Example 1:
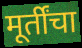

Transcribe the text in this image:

मूर्तींचा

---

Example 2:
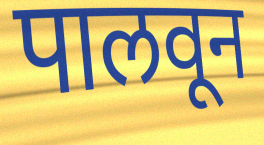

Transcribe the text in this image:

पालवून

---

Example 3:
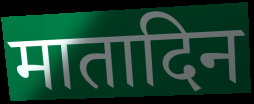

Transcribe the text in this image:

मातादिन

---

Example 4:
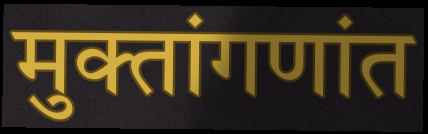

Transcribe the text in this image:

मुक्तांगणांत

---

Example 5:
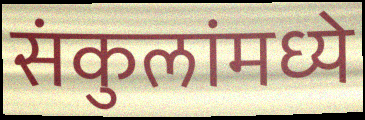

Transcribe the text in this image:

संकुलांमध्ये